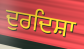
ਦੁਰਦਿਸ਼ਾ